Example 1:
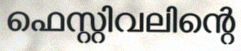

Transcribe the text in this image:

ഫെസ്റ്റിവലിന്റെ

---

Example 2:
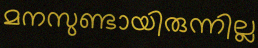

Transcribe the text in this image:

മനസുണ്ടായിരുന്നില്ല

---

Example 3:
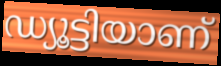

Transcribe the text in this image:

ഡ്യൂട്ടിയാണ്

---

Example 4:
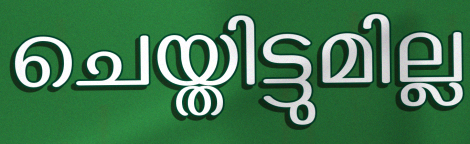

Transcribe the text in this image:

ചെയ്തിട്ടുമില്ല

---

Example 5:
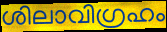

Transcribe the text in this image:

ശിലാവിഗ്രഹം